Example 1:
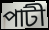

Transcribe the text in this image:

পাটী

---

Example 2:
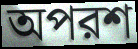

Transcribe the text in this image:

অপরশ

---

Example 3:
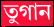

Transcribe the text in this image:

তুগান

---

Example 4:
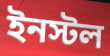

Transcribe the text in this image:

ইনস্টল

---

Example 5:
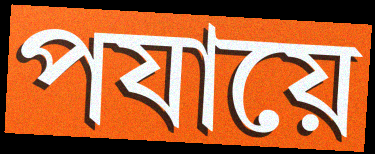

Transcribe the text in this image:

পযায়ে